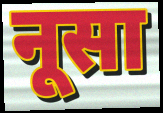
नूसा